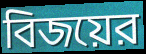
বিজয়ের